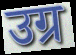
उग्र